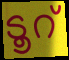
ടൂറ്